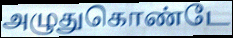
அழுதுகொண்டே